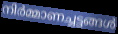
നിർമ്മാണച്ചട്ടങ്ങൾ